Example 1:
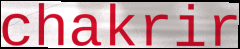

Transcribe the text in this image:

chakrir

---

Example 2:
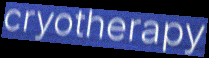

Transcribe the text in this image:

cryotherapy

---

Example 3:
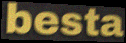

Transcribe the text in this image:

besta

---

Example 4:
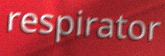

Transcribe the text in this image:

respirator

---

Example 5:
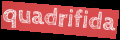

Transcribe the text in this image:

quadrifida